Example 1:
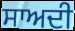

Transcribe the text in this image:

ਸਾਅਦੀ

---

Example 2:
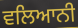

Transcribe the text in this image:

ਵਲਿਆਨੀ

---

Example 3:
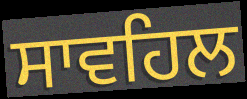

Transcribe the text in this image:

ਸਾਵਹਿਲ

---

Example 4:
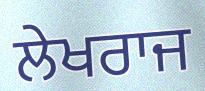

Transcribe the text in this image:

ਲੇਖਰਾਜ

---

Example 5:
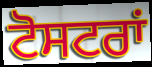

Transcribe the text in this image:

ਟੋਸਟਰਾਂ